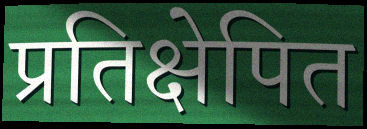
प्रतिक्षेपित